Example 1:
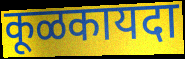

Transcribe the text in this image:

कूळकायदा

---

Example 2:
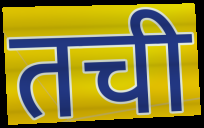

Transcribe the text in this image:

तची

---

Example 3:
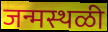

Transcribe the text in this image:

जन्मस्थळी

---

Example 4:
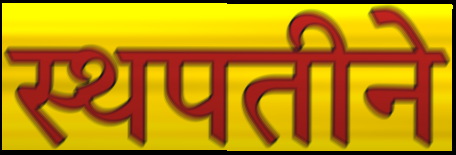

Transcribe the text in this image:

स्थपतीने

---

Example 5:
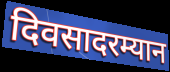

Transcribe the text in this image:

दिवसादरम्यान